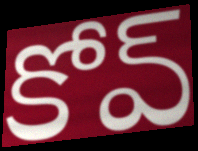
కోవ్